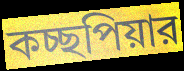
কচ্ছপিয়ার